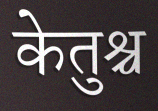
केतुश्च